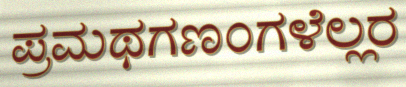
ಪ್ರಮಥಗಣಂಗಳೆಲ್ಲರ